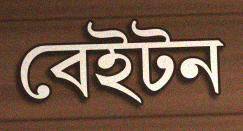
বেইটন